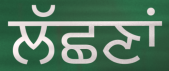
ਲੱਛਣਾਂ